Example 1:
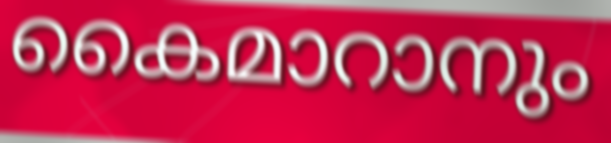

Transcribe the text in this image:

കൈമാറാനും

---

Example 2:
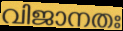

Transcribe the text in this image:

വിജാനതഃ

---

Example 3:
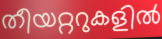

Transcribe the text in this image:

തീയറ്ററുകളിൽ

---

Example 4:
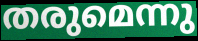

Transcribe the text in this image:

തരുമെന്നു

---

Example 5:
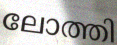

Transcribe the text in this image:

ലോത്തി